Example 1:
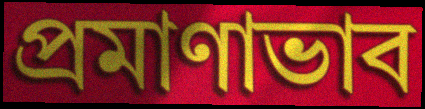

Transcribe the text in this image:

প্রমাণাভাব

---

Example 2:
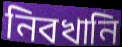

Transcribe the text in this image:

নিবখানি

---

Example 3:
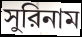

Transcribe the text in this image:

সুরিনাম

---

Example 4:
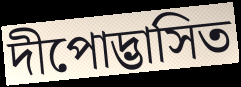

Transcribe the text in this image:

দীপোদ্ভাসিত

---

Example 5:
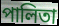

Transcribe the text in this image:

পালিতা